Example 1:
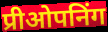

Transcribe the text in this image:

प्रीओपनिंग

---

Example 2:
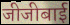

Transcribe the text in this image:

जीजीबाई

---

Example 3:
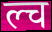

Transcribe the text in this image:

ल्च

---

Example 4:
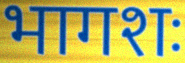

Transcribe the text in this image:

भागशः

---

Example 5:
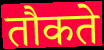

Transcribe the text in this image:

तौकते